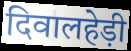
दिवालहेड़ी